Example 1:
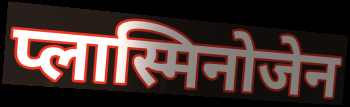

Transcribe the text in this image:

प्लास्मिनोजेन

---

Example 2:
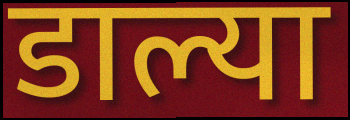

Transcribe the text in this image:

डाल्या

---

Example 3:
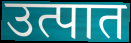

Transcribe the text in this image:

उत्पात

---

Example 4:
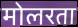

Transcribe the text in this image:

मोलरता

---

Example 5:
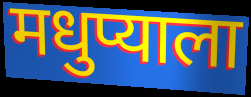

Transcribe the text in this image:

मधुप्याला